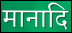
मानादि